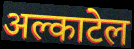
अल्काटेल